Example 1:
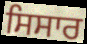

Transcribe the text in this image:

ਸਿਸਾਰ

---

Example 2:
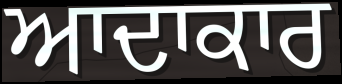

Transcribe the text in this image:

ਆਦਾਕਾਰ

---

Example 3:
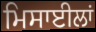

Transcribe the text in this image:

ਮਿਸਾਈਲਾਂ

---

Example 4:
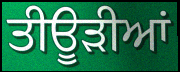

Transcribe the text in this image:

ਤੀਊੜੀਆਂ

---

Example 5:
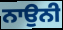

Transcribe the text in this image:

ਨਾਉਨੀ